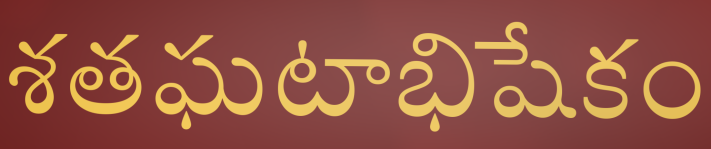
శతఘటాభిషేకం